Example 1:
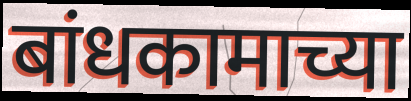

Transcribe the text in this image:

बांधकामाच्या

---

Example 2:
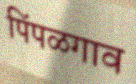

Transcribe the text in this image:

पिंपळगाव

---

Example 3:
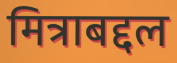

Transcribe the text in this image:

मित्राबद्दल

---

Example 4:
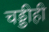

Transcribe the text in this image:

चड्डीही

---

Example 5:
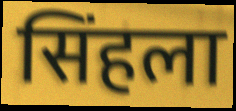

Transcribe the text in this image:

सिंहला